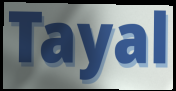
Tayal